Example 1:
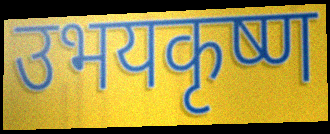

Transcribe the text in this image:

उभयकृष्ण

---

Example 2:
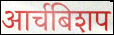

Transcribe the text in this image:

आर्चबिशप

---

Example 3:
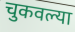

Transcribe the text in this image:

चुकवल्या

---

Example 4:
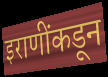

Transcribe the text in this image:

इराणींकडून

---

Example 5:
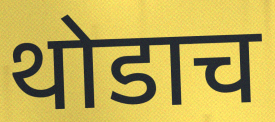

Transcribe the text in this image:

थोडाच